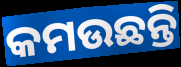
କମଉଛନ୍ତି